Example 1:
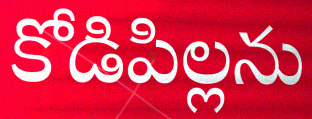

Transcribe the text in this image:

కోడిపిల్లను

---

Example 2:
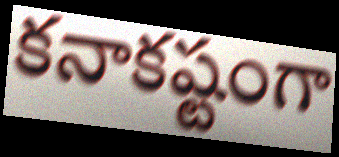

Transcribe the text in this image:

కనాకష్టంగా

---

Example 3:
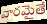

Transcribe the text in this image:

వారమైతే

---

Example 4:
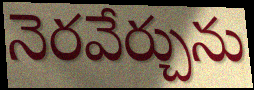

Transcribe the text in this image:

నెరవేర్చును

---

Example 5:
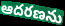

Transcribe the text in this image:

ఆదరణను